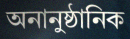
অনানুষ্ঠানিক